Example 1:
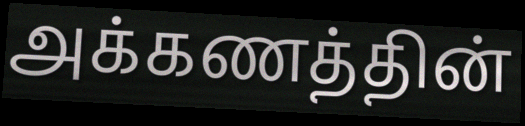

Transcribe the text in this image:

அக்கணத்தின்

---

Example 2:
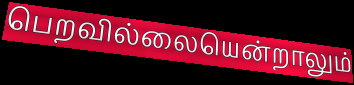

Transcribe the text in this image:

பெறவில்லையென்றாலும்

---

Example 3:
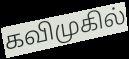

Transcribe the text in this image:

கவிமுகில்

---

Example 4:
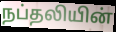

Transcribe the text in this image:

நப்தலியின்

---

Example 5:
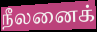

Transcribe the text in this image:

நீலனைக்